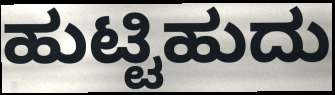
ಹುಟ್ಟಿಹುದು